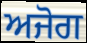
ਅਜੋਗ